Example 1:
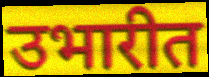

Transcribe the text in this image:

उभारीत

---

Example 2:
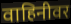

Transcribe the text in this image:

वाहिनीवर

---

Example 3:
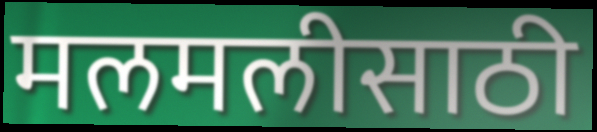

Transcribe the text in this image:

मलमलीसाठी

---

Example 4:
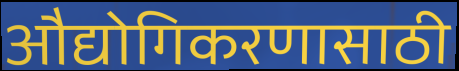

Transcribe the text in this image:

औद्योगिकरणासाठी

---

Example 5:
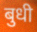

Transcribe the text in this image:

बुधी